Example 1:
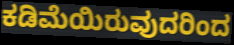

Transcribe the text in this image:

ಕಡಿಮೆಯಿರುವುದರಿಂದ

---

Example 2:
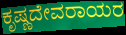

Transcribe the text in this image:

ಕೃಷ್ಣದೇವರಾಯರ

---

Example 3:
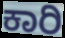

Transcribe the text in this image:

ಕಾರಿ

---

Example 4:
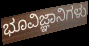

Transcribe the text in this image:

ಭೂವಿಜ್ಞಾನಿಗಳು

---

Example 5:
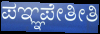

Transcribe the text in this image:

ಪಞ್ಞಪೇತೀತಿ